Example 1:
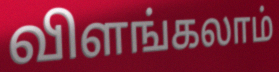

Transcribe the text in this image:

விளங்கலாம்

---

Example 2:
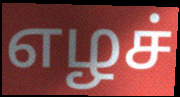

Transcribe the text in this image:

எழச்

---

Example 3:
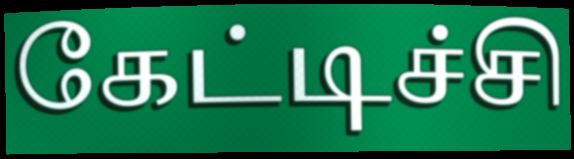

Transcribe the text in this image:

கேட்டிச்சி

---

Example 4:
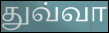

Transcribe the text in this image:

துவ்வா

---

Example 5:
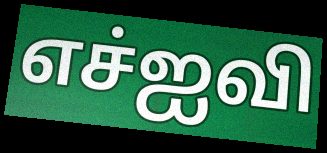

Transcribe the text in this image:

எச்ஐவி